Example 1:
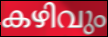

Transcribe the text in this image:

കഴിവും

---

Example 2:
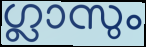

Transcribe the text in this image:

ഗ്ലാസും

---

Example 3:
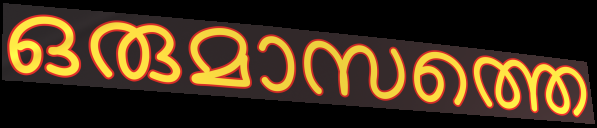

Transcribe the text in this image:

ഒരുമാസത്തെ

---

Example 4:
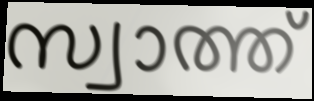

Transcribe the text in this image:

സ്വാത്ത്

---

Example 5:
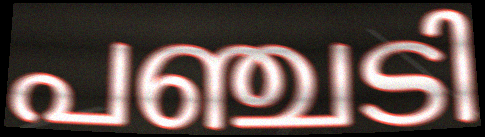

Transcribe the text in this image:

പഞ്ചടി